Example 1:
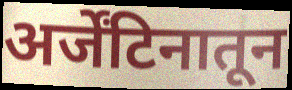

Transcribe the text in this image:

अर्जेंटिनातून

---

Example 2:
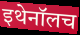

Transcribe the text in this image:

इथेनॉलच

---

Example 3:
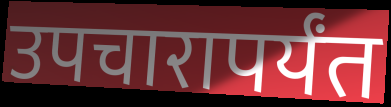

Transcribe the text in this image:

उपचारापर्यंत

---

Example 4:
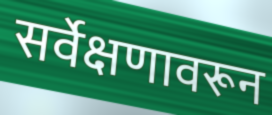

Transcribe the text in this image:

सर्वेक्षणावरून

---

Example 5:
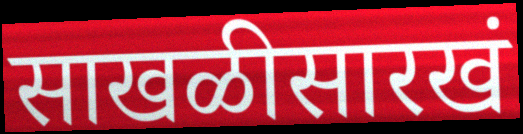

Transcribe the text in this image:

साखळीसारखं